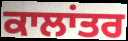
ਕਾਲਾਂਤਰ